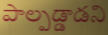
పాల్పడ్డాడని